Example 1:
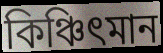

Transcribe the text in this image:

কিঞ্চিৎমান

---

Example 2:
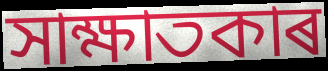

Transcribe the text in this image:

সাক্ষাতকাৰ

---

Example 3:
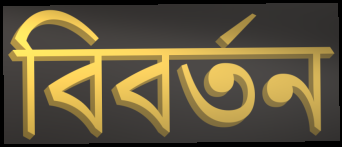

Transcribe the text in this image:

বিবৰ্তন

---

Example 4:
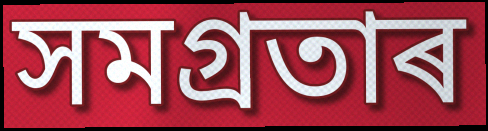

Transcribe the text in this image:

সমগ্ৰতাৰ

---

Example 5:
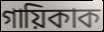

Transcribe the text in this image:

গায়িকাক